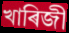
খাৰিজী